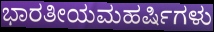
ಭಾರತೀಯಮಹರ್ಷಿಗಳು